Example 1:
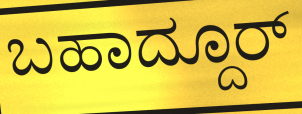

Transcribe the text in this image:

ಬಹಾದ್ದೂರ್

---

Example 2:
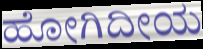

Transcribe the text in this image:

ಹೋಗಿದೀಯ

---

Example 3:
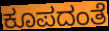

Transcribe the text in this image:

ಕೂಪದಂತೆ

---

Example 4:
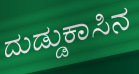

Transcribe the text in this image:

ದುಡ್ಡುಕಾಸಿನ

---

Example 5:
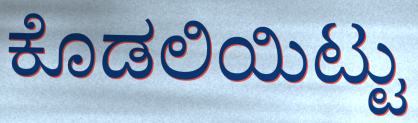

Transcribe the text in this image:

ಕೊಡಲಿಯಿಟ್ಟು